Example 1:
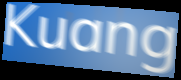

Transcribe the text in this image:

Kuang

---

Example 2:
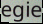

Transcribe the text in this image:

egie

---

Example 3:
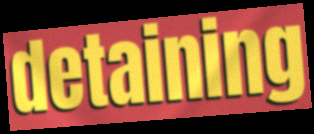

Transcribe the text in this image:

detaining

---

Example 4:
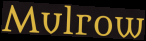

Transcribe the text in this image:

Mulrow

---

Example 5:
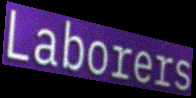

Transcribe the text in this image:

Laborers